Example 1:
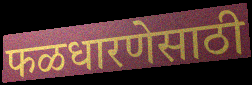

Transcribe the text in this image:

फळधारणेसाठी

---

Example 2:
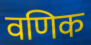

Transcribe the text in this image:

वणिक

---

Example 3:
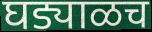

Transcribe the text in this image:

घड्याळच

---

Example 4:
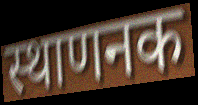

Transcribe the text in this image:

स्थाणनक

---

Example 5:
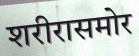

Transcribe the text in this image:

शरीरासमोर